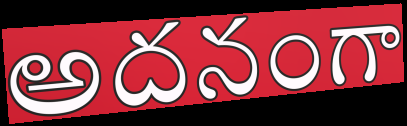
అదనంగా